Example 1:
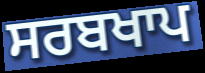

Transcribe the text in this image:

ਸਰਬਖਾਪ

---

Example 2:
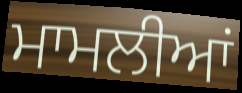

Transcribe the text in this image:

ਮਾਮਲੀਆਂ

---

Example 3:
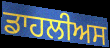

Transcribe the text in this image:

ਡਾਹਲੀਅਸ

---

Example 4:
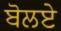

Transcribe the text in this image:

ਬੋਲਏ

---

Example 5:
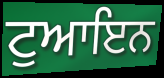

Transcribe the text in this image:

ਟੁਆਇਨ